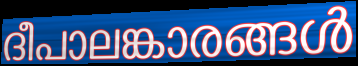
ദീപാലങ്കാരങ്ങൾ